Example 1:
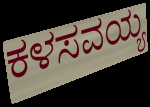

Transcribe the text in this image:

ಕಳಸವಯ್ಯ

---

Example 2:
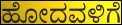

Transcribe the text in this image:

ಹೋದವಳಿಗೆ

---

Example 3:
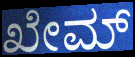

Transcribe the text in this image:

ಖೇಮ್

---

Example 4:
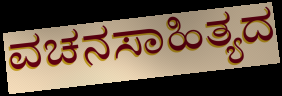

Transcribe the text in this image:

ವಚನಸಾಹಿತ್ಯದ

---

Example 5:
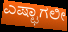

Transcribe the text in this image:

ಎಷ್ಟಾಗಲೀ